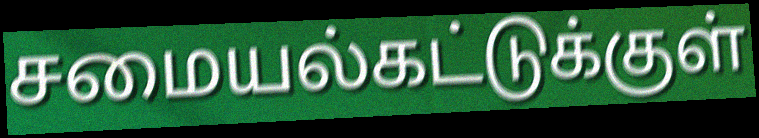
சமையல்கட்டுக்குள்